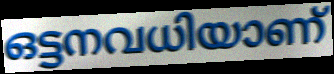
ഒട്ടനവധിയാണ്